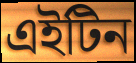
এইটিন